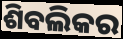
ଶିବଲିକର